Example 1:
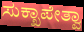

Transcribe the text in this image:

ಸುಕ್ಖಾಪೇತ್ವಾ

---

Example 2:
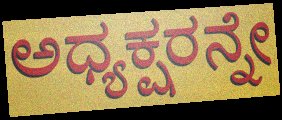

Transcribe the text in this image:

ಅಧ್ಯಕ್ಷರನ್ನೇ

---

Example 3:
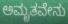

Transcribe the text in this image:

ಅಮೃತವೇನು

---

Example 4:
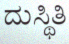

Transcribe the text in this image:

ದುಸ್ಥಿತಿ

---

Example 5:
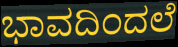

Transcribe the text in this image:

ಭಾವದಿಂದಲೆ